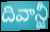
దివాన్జీ